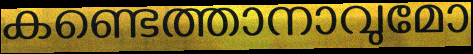
കണ്ടെത്താനാവുമോ